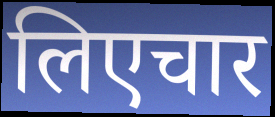
लिएचार